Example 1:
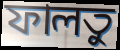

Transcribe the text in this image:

ফালতু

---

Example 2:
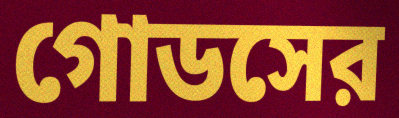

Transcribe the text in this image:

গোডসের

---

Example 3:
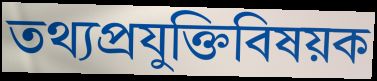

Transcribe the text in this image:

তথ্যপ্রযুক্তিবিষয়ক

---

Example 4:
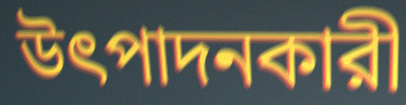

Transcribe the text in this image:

উৎপাদনকারী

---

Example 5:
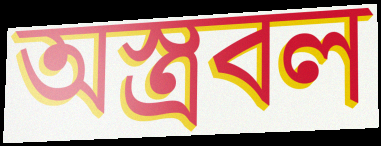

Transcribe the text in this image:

অস্ত্রবল